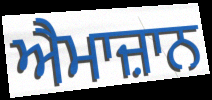
ਐਮਾਜ਼ਾਨ